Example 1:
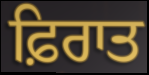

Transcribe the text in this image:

ਫ਼ਿਰਾਤ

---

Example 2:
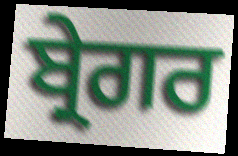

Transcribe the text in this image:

ਬ੍ਰੇਗਰ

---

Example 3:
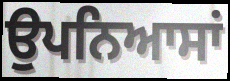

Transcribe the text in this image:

ਉਪਨਿਆਸਾਂ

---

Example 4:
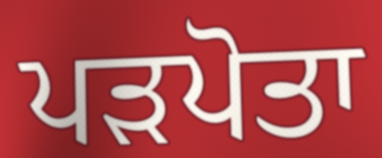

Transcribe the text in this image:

ਪੜਪੋਤਾ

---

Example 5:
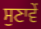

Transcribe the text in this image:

ਸੁਣਾਵੇਂ